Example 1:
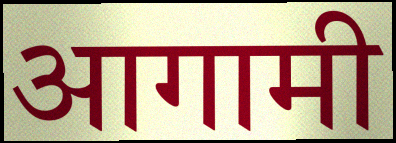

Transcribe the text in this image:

आगामी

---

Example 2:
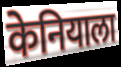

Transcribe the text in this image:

केनियाला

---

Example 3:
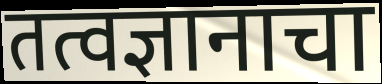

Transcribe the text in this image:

तत्वज्ञानाचा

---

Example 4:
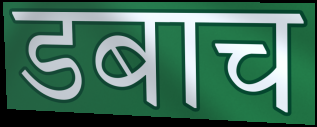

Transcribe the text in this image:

डबाच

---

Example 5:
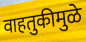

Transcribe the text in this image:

वाहतुकीमुळे